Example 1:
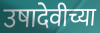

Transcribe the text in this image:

उषादेवीच्या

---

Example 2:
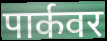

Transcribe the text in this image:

पार्कवर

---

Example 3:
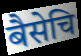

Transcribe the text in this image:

बैसेचि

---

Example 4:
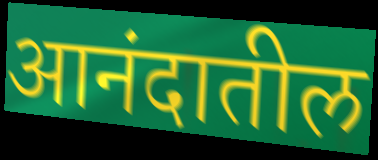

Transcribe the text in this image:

आनंदातील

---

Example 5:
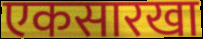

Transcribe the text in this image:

एकसारखा